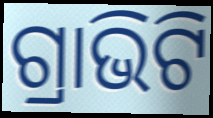
ଗ୍ରାଭିଟି